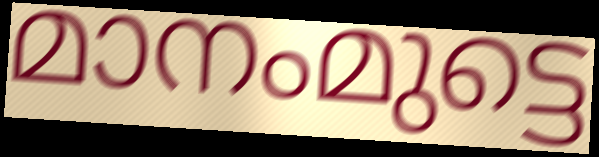
മാനംമുട്ടെ